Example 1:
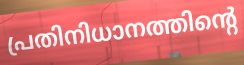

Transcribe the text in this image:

പ്രതിനിധാനത്തിന്റെ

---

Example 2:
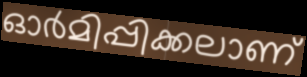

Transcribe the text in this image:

ഓർമിപ്പിക്കലാണ്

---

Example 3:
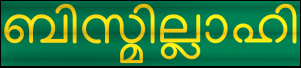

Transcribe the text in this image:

ബിസ്മില്ലാഹി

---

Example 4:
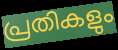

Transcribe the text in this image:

പ്രതികളും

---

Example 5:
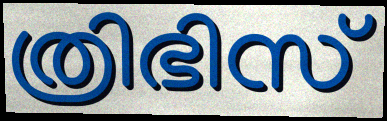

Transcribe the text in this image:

ത്രിഭിസ്